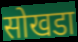
सोखडा